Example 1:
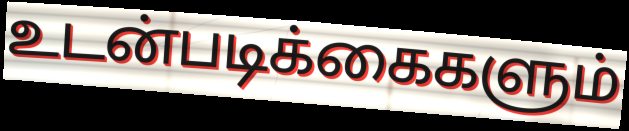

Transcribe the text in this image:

உடன்படிக்கைகளும்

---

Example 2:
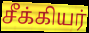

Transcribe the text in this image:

சீக்கியர்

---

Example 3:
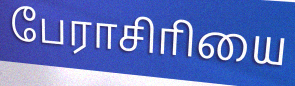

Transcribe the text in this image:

பேராசிரியை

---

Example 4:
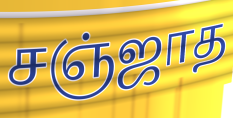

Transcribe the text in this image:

சஞ்ஜாத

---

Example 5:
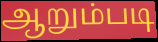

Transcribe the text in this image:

ஆறும்படி